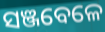
ସଞ୍ଜବେଳେ